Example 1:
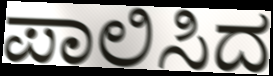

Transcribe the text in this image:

ಪಾಲಿಸಿದ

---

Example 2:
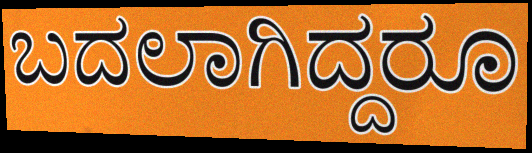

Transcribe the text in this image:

ಬದಲಾಗಿದ್ದರೂ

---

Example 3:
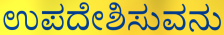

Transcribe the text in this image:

ಉಪದೇಶಿಸುವನು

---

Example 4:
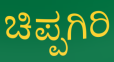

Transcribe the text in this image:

ಚಿಪ್ಪಗಿರಿ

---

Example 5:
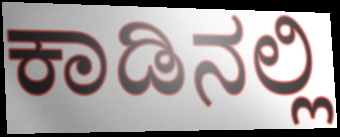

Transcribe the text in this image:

ಕಾಡಿನಲ್ಲಿ